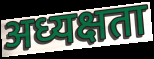
अध्यक्षता